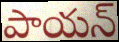
పాయన్